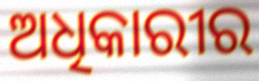
ଅଧିକାରୀର